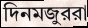
দিনমজুররা